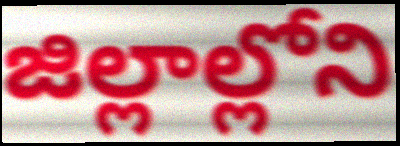
జిల్లాల్లోని